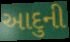
આદુની